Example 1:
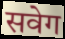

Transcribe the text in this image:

सवेग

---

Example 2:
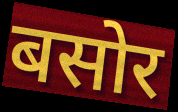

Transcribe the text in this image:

बसोर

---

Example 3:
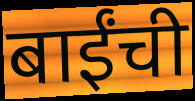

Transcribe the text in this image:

बाईंची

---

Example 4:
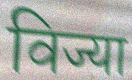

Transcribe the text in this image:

विज्या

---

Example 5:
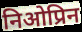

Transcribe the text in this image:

निओप्रिन